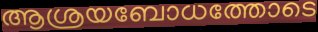
ആശ്രയബോധത്തോടെ